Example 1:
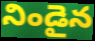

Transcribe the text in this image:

నిండైన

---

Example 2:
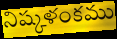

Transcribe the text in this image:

నిష్కళంకము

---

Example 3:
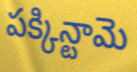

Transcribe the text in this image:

పక్కిన్టామె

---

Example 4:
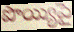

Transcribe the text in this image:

పొయ్యిపై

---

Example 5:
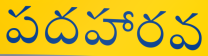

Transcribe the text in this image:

పదహారవ